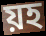
য়হ